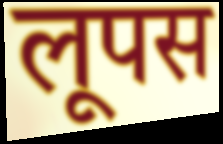
लूपस